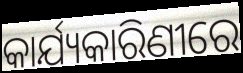
କାର୍ଯ୍ୟକାରିଣୀରେ